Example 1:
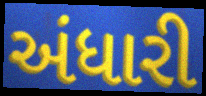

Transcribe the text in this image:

અંધારી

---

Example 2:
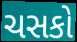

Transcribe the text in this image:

ચસકો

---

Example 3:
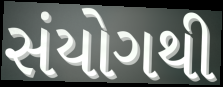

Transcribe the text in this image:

સંયોગથી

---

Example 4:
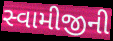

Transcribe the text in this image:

સ્વામીજીની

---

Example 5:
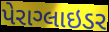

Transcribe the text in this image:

પેરાગ્લાઇડર